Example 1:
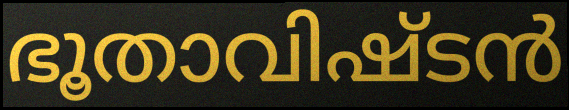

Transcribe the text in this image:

ഭൂതാവിഷ്ടൻ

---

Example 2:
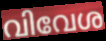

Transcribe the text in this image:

വിവേശ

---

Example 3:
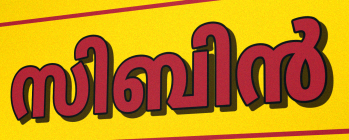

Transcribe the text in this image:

സിബിൻ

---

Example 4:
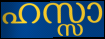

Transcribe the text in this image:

ഹസ്സാ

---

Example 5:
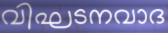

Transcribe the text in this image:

വിഘടനവാദ